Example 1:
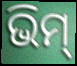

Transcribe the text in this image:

ଭିମ୍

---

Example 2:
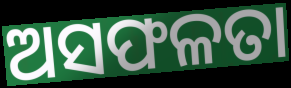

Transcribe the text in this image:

ଅସଫଳତା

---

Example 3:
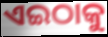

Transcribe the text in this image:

ଏଇଠାକୁ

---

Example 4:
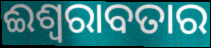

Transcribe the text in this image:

ଈଶ୍ୱରାବତାର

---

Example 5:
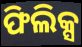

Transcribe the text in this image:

ଫିଲିକ୍ସ